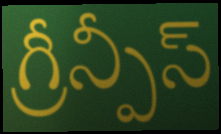
గ్రీన్పీస్